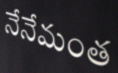
నేనేమంత